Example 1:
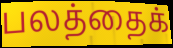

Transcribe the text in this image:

பலத்தைக்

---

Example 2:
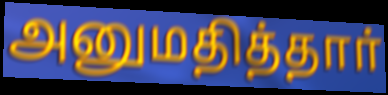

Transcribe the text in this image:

அனுமதித்தார்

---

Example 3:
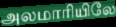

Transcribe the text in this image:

அலமாரியிலே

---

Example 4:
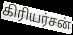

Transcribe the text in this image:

கிரியர்சன்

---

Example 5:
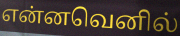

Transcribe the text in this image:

என்னவெனில்